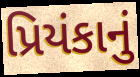
પ્રિયંકાનું